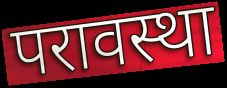
परावस्था